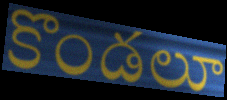
కొండలూ